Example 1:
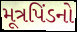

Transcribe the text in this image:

મૂત્રપિંડનો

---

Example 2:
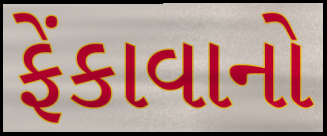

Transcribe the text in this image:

ફેંકાવાનો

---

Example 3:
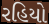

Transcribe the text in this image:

રહિયો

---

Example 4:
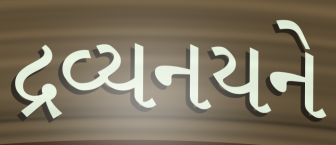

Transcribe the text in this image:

દ્રવ્યનયને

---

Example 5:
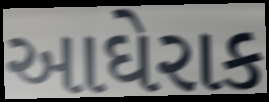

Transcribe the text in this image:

આઘેરાક